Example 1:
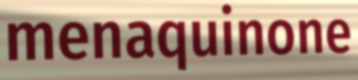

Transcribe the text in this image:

menaquinone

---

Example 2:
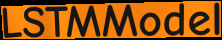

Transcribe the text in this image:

LSTMModel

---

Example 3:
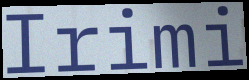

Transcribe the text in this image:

Irimi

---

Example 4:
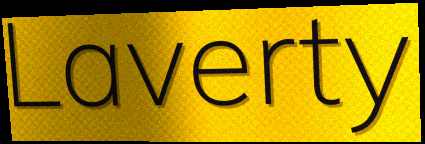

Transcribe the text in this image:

Laverty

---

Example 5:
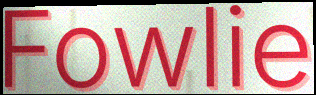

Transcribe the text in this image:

Fowlie